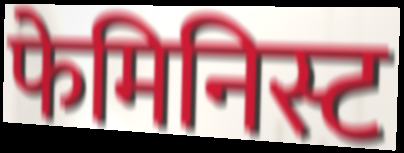
फेमिनिस्ट